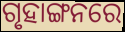
ଗୃହାଙ୍ଗନରେ